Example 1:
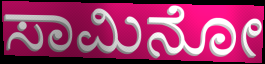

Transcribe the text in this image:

ಸಾಮಿನೋ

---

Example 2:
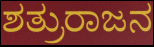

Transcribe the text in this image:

ಶತ್ರುರಾಜನ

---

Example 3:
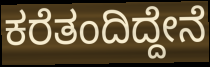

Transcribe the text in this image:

ಕರೆತಂದಿದ್ದೇನೆ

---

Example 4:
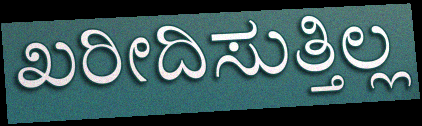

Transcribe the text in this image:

ಖರೀದಿಸುತ್ತಿಲ್ಲ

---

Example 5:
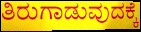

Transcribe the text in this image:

ತಿರುಗಾಡುವುದಕ್ಕೆ